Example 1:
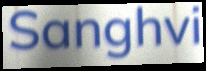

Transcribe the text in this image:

Sanghvi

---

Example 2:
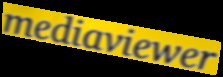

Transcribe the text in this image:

mediaviewer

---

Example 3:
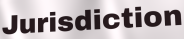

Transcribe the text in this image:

Jurisdiction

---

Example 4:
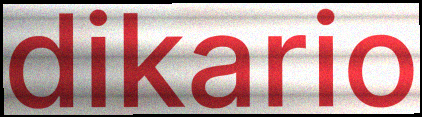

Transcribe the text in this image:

dikario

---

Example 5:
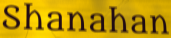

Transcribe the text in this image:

Shanahan